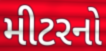
મીટરનો